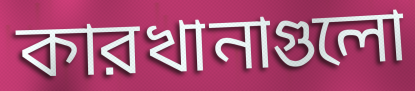
কারখানাগুলো